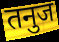
तनुज